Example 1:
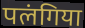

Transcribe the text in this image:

पलंगिया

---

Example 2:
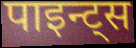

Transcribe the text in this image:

पाइन्ट्स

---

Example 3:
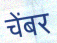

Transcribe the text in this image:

चेंबर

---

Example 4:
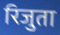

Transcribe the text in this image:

रिजुता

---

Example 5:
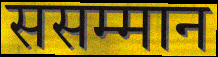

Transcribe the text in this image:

ससम्मान